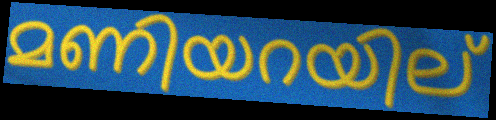
മണിയറയില്